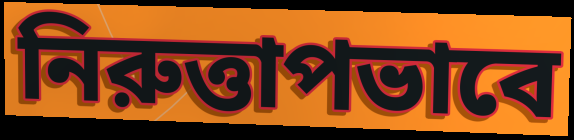
নিরুত্তাপভাবে